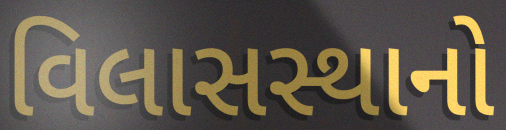
વિલાસસ્થાનો